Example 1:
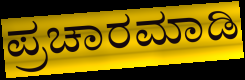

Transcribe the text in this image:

ಪ್ರಚಾರಮಾಡಿ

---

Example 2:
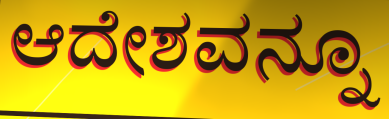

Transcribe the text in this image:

ಆದೇಶವನ್ನೂ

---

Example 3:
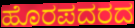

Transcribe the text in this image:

ಹೊರಪದರದ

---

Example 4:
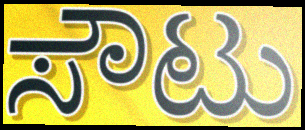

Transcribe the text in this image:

ಸೌಟು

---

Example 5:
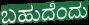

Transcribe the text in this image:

ಬಹುದೆಂದು